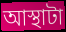
আস্থাটা